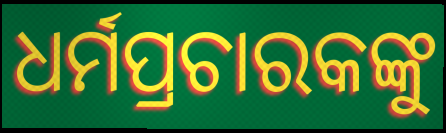
ଧର୍ମପ୍ରଚାରକଙ୍କୁ